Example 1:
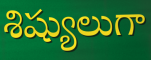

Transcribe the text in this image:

శిష్యులుగా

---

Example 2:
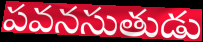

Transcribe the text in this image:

పవనసుతుడు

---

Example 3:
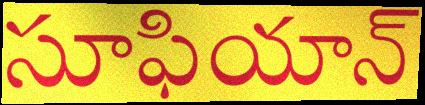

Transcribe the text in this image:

సూఫియాన్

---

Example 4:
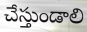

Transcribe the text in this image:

చేస్తుండాలి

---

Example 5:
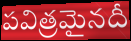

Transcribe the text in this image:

పవిత్రమైనదీ